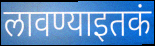
लावण्याइतकं